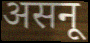
असनू